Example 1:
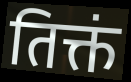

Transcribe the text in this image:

तिक्तं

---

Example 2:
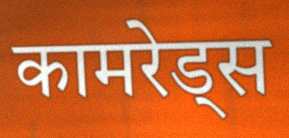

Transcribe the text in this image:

कामरेड्स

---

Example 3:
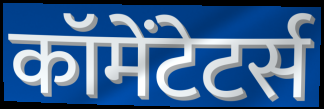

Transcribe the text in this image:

कॉमेंटेटर्स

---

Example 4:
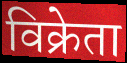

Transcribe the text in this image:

विक्रेता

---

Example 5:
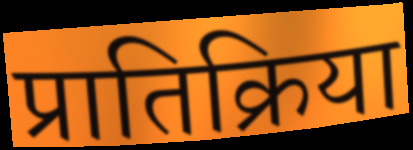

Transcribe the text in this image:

प्रातिक्रिया